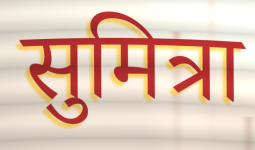
सुमित्रा